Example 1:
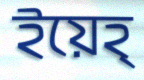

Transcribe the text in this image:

ইয়েহ্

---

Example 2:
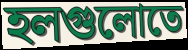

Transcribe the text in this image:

হলগুলোতে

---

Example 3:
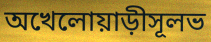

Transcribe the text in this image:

অখেলোয়াড়ীসূলভ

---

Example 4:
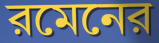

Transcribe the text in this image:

রমেনের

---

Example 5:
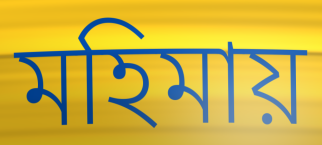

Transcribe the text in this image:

মহিমায়